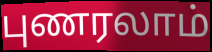
புணரலாம்